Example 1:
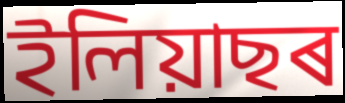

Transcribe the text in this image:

ইলিয়াছৰ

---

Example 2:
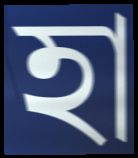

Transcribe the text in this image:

হা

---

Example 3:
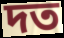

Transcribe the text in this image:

দত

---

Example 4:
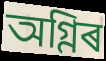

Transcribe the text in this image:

অগ্নিৰ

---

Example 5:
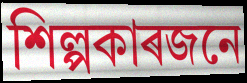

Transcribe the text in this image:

শিল্পকাৰজনে